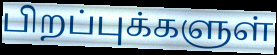
பிறப்புக்களுள்